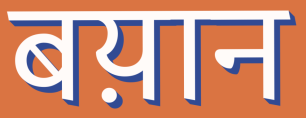
बय़ान